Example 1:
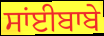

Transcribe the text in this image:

ਸਾਂਈਬਾਬੇ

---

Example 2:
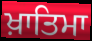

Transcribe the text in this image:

ਖ਼ਾਤਿਮਾ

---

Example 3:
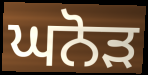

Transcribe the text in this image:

ਘਨੋੜ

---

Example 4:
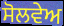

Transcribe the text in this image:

ਸੋਲਵੇਅ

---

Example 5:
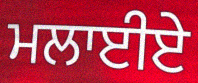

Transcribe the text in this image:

ਮਲਾਈਏ